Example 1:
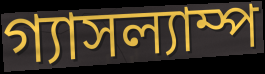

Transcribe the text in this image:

গ্যাসল্যাম্প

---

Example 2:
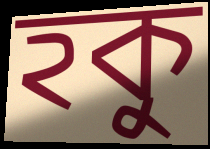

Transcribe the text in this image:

হকু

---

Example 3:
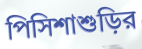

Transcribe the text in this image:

পিসিশাশুড়ির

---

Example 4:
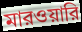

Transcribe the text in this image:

মারওয়ারি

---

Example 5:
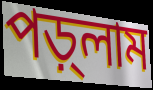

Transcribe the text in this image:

পড়্‌লাম